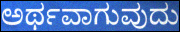
ಅರ್ಥವಾಗುವುದು